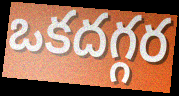
ఒకదగ్గర